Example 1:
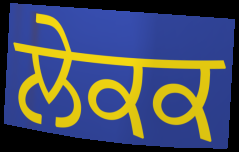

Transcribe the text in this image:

ਲੇਕਕ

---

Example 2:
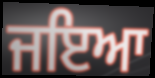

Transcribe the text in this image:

ਜਇਆ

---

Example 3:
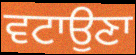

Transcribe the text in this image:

ਵਟਾਉਣਾ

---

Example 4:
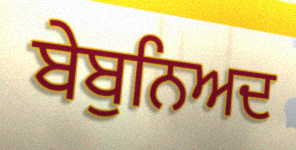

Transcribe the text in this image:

ਬੇਬੁਨਿਅਦ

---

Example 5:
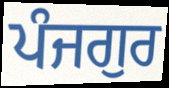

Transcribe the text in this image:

ਪੰਜਗੁਰ